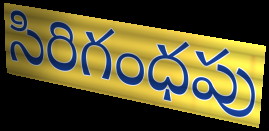
సిరిగంధపు